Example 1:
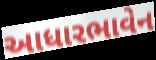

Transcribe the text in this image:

આધારભાવેન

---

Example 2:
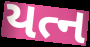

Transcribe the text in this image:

યત્ન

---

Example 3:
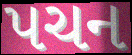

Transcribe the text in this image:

પચન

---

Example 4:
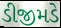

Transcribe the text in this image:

ડીજીમડે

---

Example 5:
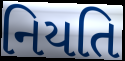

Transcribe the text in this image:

નિયતિ